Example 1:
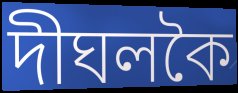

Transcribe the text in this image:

দীঘলকৈ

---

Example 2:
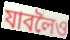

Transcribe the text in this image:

যাবলৈও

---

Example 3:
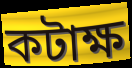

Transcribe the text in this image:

কটাক্ষ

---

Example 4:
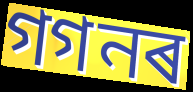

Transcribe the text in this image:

গগনৰ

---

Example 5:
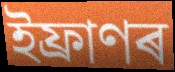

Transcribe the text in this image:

ইফ্ৰাণৰ